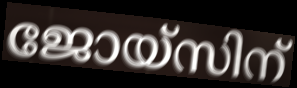
ജോയ്സിന്